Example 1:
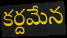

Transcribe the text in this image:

కర్దమేన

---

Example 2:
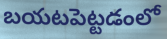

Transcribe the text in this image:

బయటపెట్టడంలో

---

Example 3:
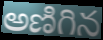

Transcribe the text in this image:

అణిగిన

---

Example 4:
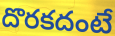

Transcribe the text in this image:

దొరకదంటే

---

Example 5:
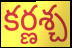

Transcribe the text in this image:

కర్ణశ్చ